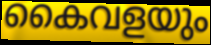
കൈവളയും